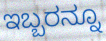
ಇಬ್ಬರನ್ನೂ